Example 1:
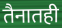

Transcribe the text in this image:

तैनातही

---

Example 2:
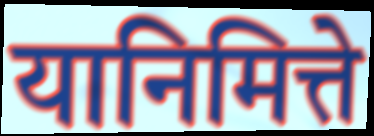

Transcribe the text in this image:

यानिमित्ते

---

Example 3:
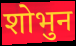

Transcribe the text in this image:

शोभुन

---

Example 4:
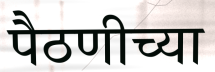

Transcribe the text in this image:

पैठणीच्या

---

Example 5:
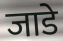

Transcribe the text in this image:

जाडे